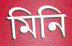
মিনি